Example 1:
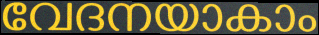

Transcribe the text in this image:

വേദനയാകാം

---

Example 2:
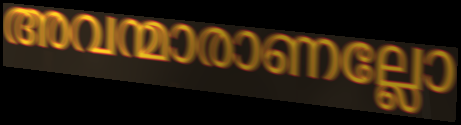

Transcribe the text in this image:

അവന്മാരാണല്ലോ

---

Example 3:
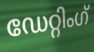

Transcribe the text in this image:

ഡേറ്റിംഗ്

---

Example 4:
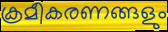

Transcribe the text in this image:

ക്രമീകരണങ്ങളും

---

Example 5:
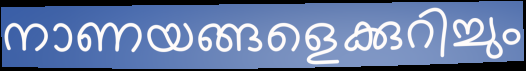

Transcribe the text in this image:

നാണയങ്ങളെക്കുറിച്ചും